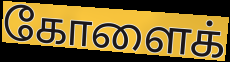
கோளைக்